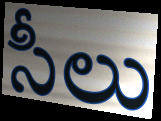
సీలు